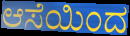
ಆಸೆಯಿಂದ